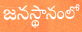
జనస్థానంలో